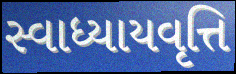
સ્વાધ્યાયવૃત્તિ